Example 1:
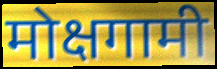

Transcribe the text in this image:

मोक्षगामी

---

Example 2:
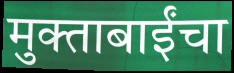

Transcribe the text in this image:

मुक्ताबाईंचा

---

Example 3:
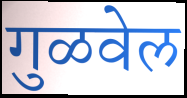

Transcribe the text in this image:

गुळवेल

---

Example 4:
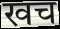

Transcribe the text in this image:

खच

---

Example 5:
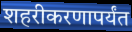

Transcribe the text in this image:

शहरीकरणापर्यंत